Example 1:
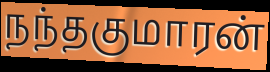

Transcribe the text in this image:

நந்தகுமாரன்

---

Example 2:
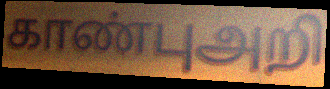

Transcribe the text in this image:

காண்புஅறி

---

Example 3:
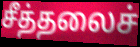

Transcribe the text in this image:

சீத்தலைச்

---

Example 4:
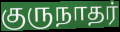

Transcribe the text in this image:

குருநாதர்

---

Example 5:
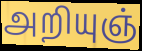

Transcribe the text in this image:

அறியுஞ்